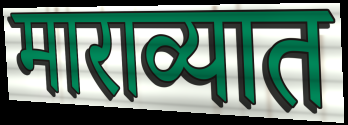
माराव्यात